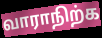
வாராநிற்க